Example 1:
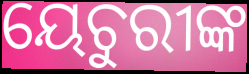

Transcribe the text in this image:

ୟେଚୁରୀଙ୍କ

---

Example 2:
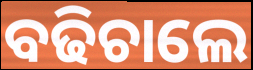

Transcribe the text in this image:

ବଢିଚାଲେ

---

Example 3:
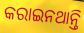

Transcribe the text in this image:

କରାଇନଥାନ୍ତି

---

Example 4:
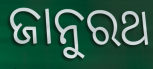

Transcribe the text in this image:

ଜାନୁରଥ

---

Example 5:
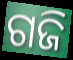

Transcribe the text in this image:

ଗଜି